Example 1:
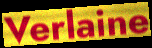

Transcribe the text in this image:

Verlaine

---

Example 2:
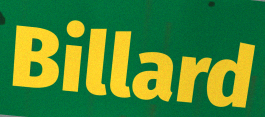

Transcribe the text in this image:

Billard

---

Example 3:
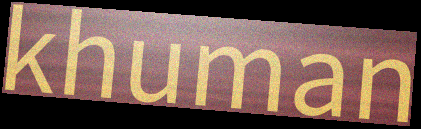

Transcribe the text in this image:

khuman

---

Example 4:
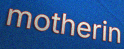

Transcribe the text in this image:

motherin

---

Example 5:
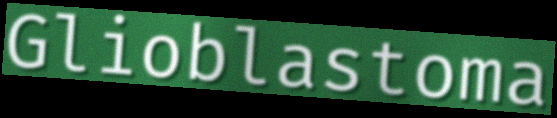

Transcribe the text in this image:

Glioblastoma